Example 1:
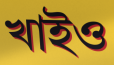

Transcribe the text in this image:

খাইও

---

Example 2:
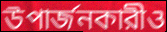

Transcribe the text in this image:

উপার্জনকারীও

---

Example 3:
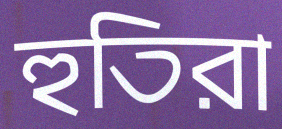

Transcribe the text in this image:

হুতিরা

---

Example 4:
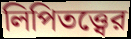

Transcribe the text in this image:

লিপিতত্ত্বের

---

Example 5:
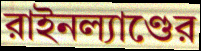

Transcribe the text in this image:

রাইনল্যাণ্ডের